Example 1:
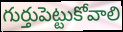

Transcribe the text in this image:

గుర్తుపెట్టుకోవాలి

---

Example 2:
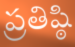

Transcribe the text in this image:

ప్రతిష్ఠి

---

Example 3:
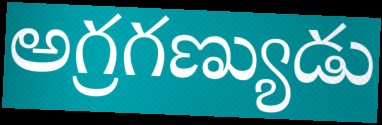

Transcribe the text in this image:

అగ్రగణ్యుడు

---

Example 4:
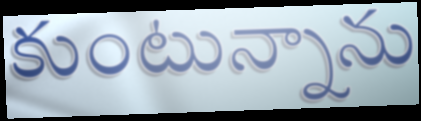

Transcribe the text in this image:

కుంటున్నాను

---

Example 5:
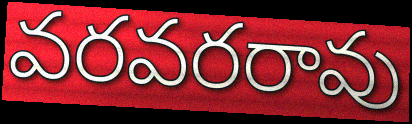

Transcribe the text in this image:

వరవరరావు